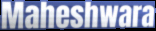
Maheshwara